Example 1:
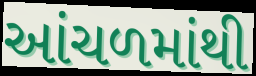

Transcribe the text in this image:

આંચળમાંથી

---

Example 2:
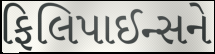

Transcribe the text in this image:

ફિલિપાઈન્સને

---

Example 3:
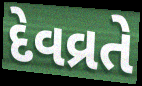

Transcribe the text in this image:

દેવવ્રતે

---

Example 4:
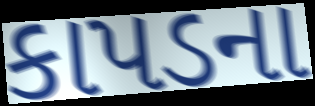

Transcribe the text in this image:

કાપડના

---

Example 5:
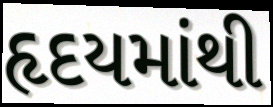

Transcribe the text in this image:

હૃદયમાંથી